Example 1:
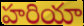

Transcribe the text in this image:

హరియా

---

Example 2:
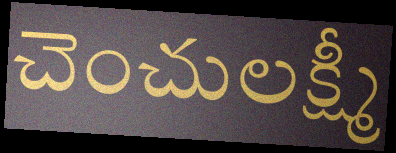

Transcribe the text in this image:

చెంచులక్ష్మీ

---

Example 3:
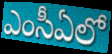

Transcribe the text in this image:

ఎంసీఏలో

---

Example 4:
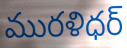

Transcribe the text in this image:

మురళిధర్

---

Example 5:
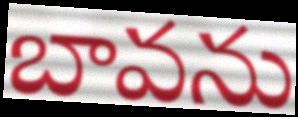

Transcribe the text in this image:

బావను